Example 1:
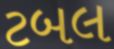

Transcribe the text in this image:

ટબલ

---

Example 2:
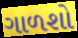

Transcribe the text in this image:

ગાળશો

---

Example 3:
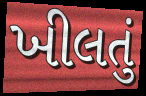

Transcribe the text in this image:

ખીલતું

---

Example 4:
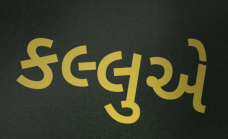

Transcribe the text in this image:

કલ્લુએ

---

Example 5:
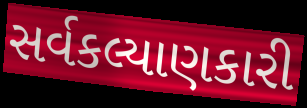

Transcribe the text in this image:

સર્વકલ્યાણકારી